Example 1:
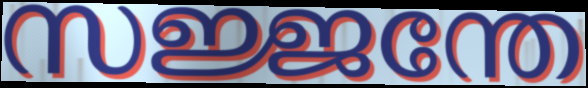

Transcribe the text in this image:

സജ്ജന്തേ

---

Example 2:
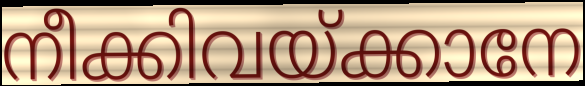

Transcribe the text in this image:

നീക്കിവയ്ക്കാനേ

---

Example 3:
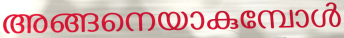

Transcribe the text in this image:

അങ്ങനെയാകുമ്പോൾ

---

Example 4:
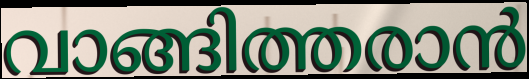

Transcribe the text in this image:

വാങ്ങിത്തരാൻ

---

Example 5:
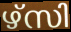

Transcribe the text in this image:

ഴ്സി